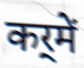
कर्में